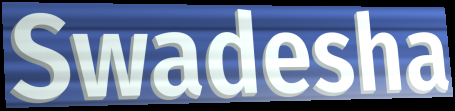
Swadesha